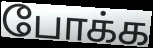
போக்க